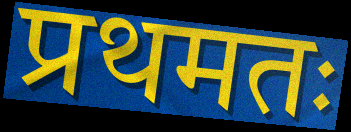
प्रथमतः